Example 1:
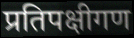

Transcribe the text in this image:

प्रतिपक्षीगण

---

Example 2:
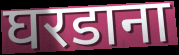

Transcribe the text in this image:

घरडाना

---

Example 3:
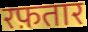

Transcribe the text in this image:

रफ़तार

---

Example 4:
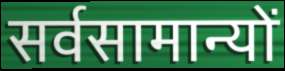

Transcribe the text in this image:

सर्वसामान्यों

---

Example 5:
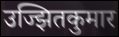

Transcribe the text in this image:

उज्झितकुमार